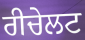
ਰੀਚੇਲਟ